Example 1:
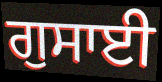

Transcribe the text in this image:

ਗੁਸਾਈ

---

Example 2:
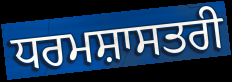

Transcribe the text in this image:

ਧਰਮਸ਼ਾਸਤਰੀ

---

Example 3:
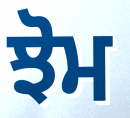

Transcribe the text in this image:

ਝੋਮ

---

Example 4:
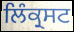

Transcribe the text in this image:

ਲਿੰਕ੍ਰਸਟ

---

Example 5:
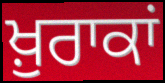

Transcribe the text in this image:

ਖ਼ੁਰਾਕਾਂ